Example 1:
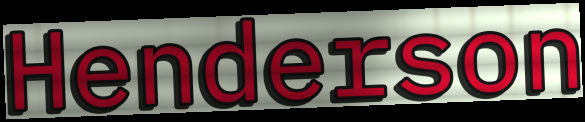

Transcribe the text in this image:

Henderson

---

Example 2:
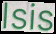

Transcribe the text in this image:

Isis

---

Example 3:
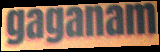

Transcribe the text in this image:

gaganam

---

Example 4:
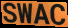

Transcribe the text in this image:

SWAC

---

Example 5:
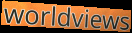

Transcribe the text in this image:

worldviews